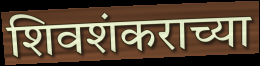
शिवशंकराच्या